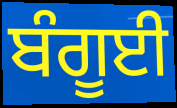
ਬੰਗੂਈ